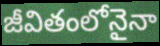
జీవితంలోనైనా